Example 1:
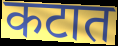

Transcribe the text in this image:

कटात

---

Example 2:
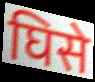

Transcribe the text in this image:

घिसे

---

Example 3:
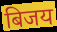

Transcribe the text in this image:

बिजय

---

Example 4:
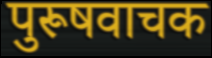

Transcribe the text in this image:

पुरूषवाचक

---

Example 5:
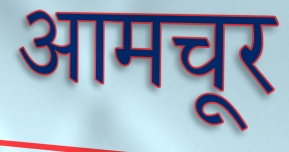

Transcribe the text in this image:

आमचूर